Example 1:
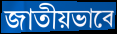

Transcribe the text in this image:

জাতীয়ভাবে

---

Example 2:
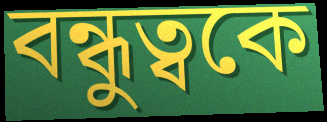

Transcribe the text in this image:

বন্ধুত্বকে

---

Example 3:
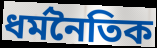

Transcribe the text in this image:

ধর্মনৈতিক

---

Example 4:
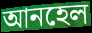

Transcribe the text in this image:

আনহেল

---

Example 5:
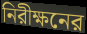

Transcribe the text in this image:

নিরীক্ষনের